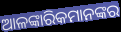
ଆଳଙ୍କାରିକମାନଙ୍କର